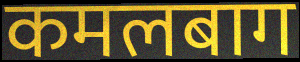
कमलबाग